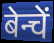
बेन्चें